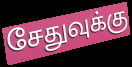
சேதுவுக்கு